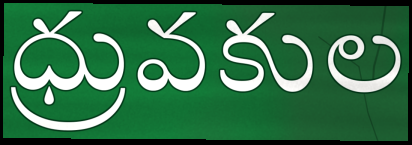
ధ్రువకుల